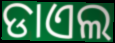
ଡାଏଲ